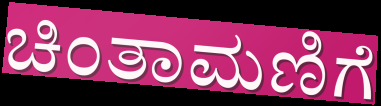
ಚಿಂತಾಮಣಿಗೆ